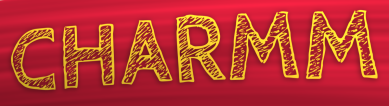
CHARMM